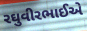
રઘુવીરભાઈએ